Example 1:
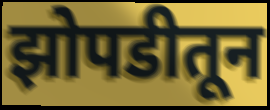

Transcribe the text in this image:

झोपडीतून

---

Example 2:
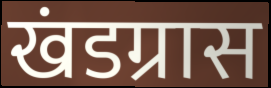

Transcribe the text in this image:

खंडग्रास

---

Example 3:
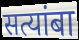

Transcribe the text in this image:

सत्यांबा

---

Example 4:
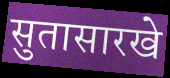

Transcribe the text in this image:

सुतासारखे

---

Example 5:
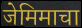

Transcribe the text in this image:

जेमिमाचा